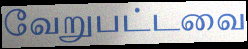
வேறுபட்டவை